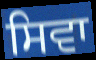
ਸਿਵਾ